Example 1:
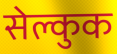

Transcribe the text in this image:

सेल्कुक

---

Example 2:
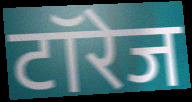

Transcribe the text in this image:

टॉरेज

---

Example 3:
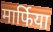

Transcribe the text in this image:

मार्फिया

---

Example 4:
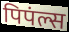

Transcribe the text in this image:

पिपंल्स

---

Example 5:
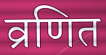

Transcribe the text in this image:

व्रणित